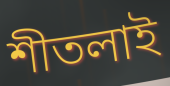
শীতলাই